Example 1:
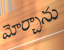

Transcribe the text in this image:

మోర్చాను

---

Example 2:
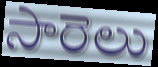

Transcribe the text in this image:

సారెలు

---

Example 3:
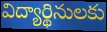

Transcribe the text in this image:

విద్యార్థినులకు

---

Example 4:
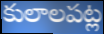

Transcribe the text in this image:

కులాలపట్ల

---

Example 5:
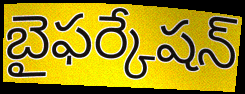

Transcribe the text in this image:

బైఫర్కేషన్